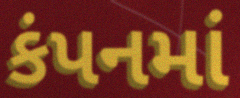
કંપનમાં